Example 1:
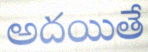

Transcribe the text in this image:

అదయితే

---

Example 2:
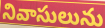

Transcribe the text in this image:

నివాసులును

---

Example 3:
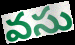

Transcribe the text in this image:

వసు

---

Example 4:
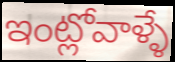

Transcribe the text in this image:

ఇంట్లోవాళ్ళే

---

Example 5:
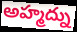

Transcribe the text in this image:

అహ్మద్ను